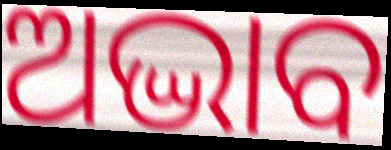
ଅଦ୍ଭାବ